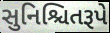
સુનિશ્ચિતરૂપે